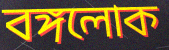
বঙ্গলোক